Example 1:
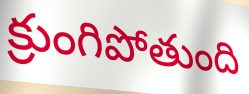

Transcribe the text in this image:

క్రుంగిపోతుంది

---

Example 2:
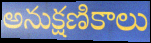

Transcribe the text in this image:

అనుక్షణికాలు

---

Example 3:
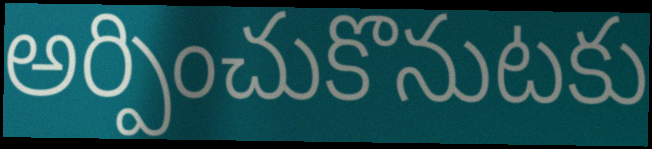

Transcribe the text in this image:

అర్పించుకొనుటకు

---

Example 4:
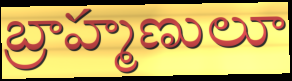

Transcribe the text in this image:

బ్రాహ్మణులూ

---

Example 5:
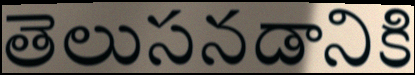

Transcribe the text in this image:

తెలుసనడానికి